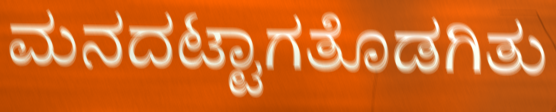
ಮನದಟ್ಟಾಗತೊಡಗಿತು